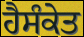
ਹੈਸੰਕੇਤ